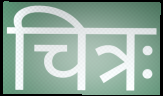
चित्रः